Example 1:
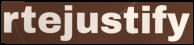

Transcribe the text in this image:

rtejustify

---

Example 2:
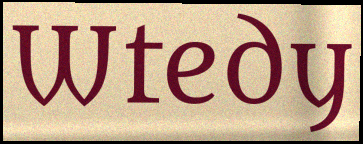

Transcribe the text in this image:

Wtedy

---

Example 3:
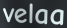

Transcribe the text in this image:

velaa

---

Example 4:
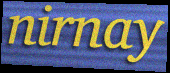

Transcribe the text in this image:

nirnay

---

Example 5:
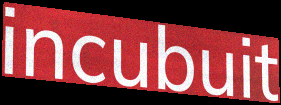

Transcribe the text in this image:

incubuit